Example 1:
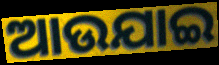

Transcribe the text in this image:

ଆଉଯାଇ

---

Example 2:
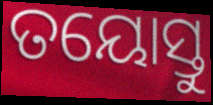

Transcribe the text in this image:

ତୟୋସ୍ତୁ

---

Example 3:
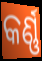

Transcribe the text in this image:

କର୍ଣ୍ଣ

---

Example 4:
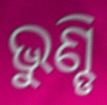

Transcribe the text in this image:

ଭୁଣ୍ଡି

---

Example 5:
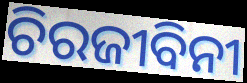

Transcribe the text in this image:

ଚିରଜୀବିନୀ